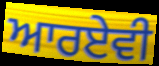
ਆਰਏਵੀ